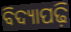
ବିଦ୍ୟାପଢ଼ି